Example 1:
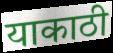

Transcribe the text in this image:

याकाठी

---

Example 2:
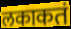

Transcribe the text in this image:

लकाकतं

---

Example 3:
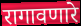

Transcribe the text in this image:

रागावणारे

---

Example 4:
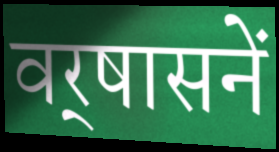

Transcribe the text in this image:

वर्षासनें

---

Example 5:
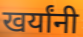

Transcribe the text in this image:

खर्यांनी